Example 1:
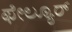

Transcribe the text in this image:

ಫೇಲ್ಯೂರ್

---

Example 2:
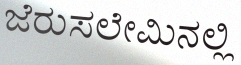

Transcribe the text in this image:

ಜೆರುಸಲೇಮಿನಲ್ಲಿ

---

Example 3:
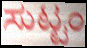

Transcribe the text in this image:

ಸುಟ್ಟಂ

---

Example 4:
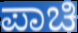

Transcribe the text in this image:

ಪಾಚಿ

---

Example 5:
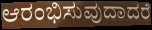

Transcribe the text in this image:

ಆರಂಭಿಸುವುದಾದರೆ